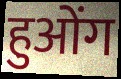
हुओंग